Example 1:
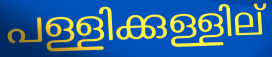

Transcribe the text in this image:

പള്ളിക്കുള്ളില്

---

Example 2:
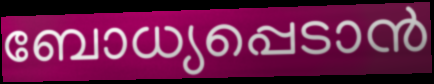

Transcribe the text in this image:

ബോധ്യപ്പെടാൻ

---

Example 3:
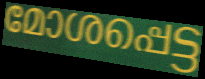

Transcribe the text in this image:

മോശപ്പെട്ട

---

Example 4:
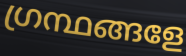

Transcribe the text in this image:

ഗ്രന്ഥങ്ങളേ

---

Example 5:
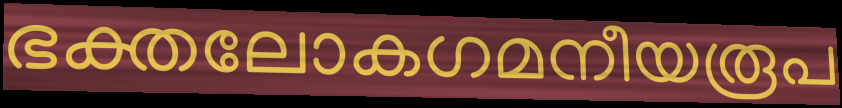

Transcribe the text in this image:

ഭക്തലോകഗമനീയരൂപ